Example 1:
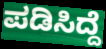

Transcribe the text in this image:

ಪಡಿಸಿದ್ದೆ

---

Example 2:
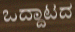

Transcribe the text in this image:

ಒದ್ದಾಟದ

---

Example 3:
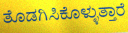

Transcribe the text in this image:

ತೊಡಗಿಸಿಕೊಳ್ಳುತ್ತಾರೆ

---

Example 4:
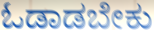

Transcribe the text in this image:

ಓಡಾಡಬೇಕು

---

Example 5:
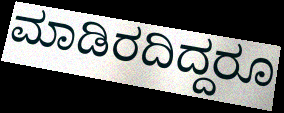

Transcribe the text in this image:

ಮಾಡಿರದಿದ್ದರೂ